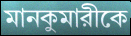
মানকুমারীকে